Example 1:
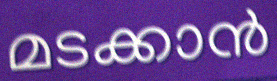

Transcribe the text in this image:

മടക്കാൻ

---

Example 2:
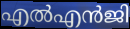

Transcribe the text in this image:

എൽഎൻജി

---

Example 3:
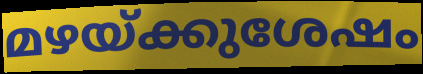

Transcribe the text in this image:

മഴയ്ക്കുശേഷം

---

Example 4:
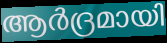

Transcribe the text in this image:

ആർദ്രമായി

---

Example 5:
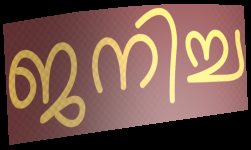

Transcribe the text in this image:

ജനിച്ച